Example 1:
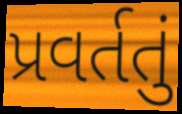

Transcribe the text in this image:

પ્રવર્તતું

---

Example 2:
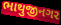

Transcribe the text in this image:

ભાથુજીનગર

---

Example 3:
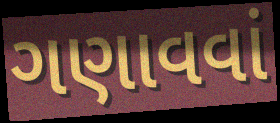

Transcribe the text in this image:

ગણાવવાં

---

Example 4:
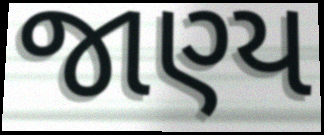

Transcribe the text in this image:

જાણ્ય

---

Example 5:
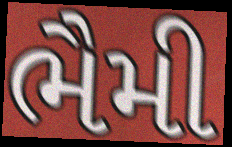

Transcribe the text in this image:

ભૈમી